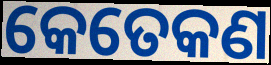
କେତେକଣ